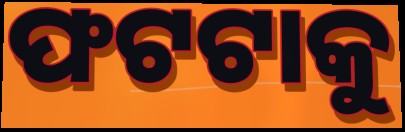
ଫଟଟାକୁ